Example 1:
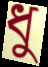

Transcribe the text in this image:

ধু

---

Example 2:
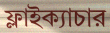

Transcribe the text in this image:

ফ্লাইক্যাচার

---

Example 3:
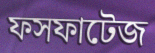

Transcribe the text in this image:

ফসফাটেজ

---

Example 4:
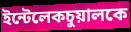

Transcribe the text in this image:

ইন্টেলেকচুয়ালকে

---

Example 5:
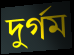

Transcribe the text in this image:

দুর্গম